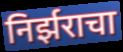
निर्झराचा